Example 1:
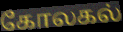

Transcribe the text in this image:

கோலகல்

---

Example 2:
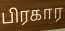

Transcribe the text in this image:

பிரகார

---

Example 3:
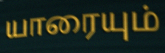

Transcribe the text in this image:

யாரையும்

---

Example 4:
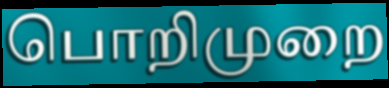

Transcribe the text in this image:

பொறிமுறை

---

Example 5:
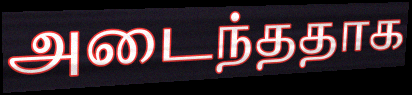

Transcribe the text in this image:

அடைந்ததாக